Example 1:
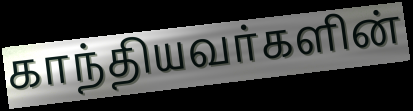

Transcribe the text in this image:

காந்தியவர்களின்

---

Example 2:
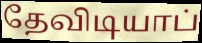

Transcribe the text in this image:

தேவிடியாப்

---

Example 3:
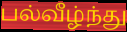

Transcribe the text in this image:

பல்வீழ்ந்து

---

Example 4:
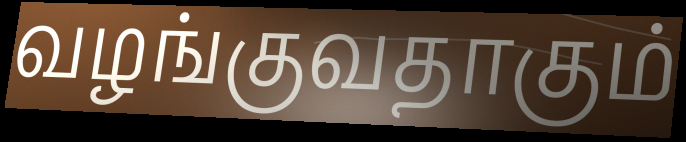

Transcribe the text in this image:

வழங்குவதாகும்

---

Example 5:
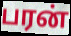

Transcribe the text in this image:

பரன்